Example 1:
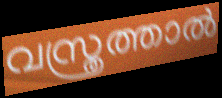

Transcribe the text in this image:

വസ്ത്രത്താൽ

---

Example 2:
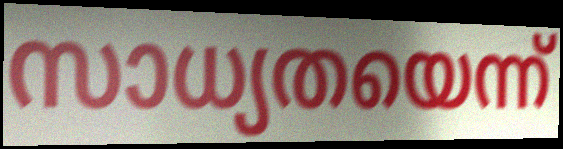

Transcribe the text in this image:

സാധ്യതയെന്ന്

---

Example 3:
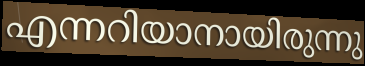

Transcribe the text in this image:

എന്നറിയാനായിരുന്നു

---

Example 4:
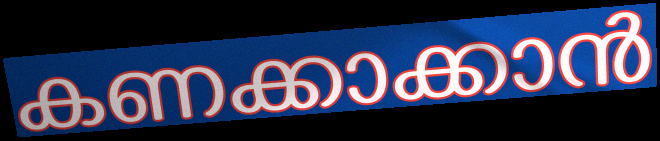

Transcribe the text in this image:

കണക്കാക്കാൻ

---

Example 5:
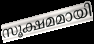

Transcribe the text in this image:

സൂക്ഷമമായി